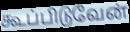
கூப்பிடுவேன்